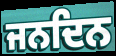
ਜਨਦਿਨ